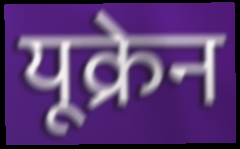
यूक्रेन